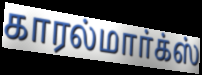
காரல்மார்க்ஸ்